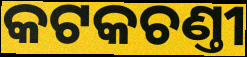
କଟକଚଣ୍ତୀ